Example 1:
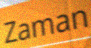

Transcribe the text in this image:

Zaman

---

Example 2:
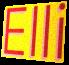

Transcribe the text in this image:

Elli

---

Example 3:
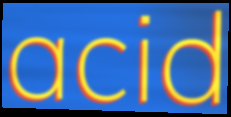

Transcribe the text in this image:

acid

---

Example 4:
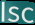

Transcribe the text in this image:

Isc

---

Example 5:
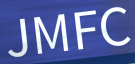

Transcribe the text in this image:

JMFC